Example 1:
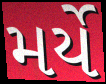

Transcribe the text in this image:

મર્યે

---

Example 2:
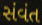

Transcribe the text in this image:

સંવંત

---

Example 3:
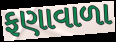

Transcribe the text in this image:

ફણાવાળા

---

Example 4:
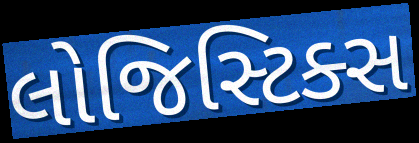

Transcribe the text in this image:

લોજિસ્ટિક્સ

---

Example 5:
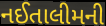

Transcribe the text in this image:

નઈતાલીમની